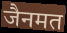
जैनमत